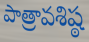
పాత్రావశిష్ఠ